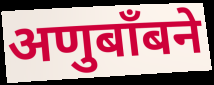
अणुबाँबने